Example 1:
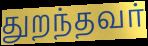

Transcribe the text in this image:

துறந்தவர்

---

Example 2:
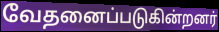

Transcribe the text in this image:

வேதனைப்படுகின்றனர்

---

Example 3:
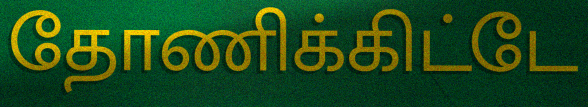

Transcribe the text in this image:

தோணிக்கிட்டே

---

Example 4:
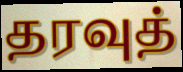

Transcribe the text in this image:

தரவுத்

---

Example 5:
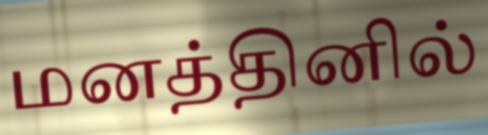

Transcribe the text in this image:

மனத்தினில்